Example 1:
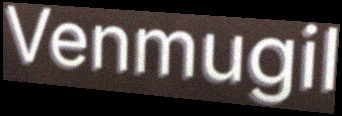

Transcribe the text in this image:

Venmugil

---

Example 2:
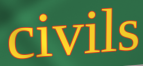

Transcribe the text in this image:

civils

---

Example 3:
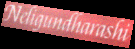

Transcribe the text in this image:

Neligundharashi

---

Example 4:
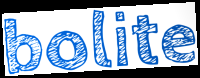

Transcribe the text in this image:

bolite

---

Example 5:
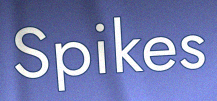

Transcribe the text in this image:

Spikes